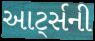
આર્ટ્સની